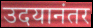
उदयानंतर